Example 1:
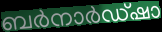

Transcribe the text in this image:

ബർനാർഡ്ഷാ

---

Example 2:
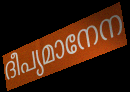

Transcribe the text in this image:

ദീപ്യമാനേന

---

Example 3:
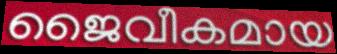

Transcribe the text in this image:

ജൈവീകമായ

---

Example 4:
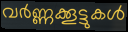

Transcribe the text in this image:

വർണ്ണക്കൂട്ടുകൾ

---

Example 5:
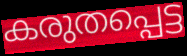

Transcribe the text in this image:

കരുതപ്പെട്ട